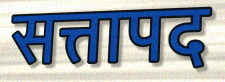
सत्तापद